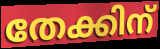
തേക്കിന്